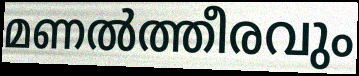
മണൽത്തീരവും